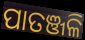
ପାତଞ୍ଜଳି